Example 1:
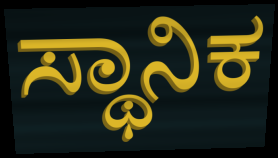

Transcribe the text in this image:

ಸ್ಥಾನಿಕ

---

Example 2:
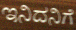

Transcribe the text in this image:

ಇನಿದನಿಗೆ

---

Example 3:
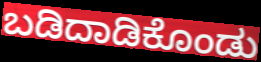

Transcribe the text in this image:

ಬಡಿದಾಡಿಕೊಂಡು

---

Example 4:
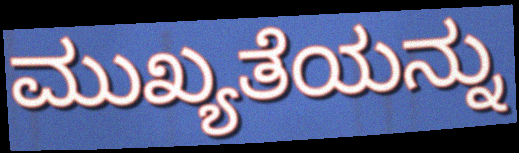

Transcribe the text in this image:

ಮುಖ್ಯತೆಯನ್ನು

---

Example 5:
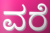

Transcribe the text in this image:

ವರೆ